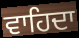
ਵਾਹਿਦਾ